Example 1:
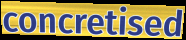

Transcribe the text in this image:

concretised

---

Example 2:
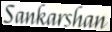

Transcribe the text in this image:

Sankarshan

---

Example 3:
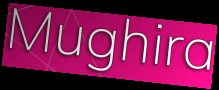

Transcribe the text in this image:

Mughira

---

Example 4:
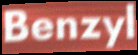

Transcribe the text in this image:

Benzyl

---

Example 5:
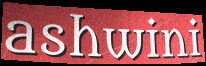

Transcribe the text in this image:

ashwini